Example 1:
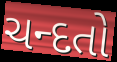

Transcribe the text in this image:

ચન્દતો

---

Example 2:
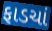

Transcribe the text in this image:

ફાડચાં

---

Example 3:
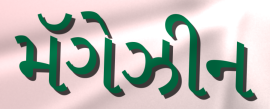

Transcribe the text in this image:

મૅગેઝીન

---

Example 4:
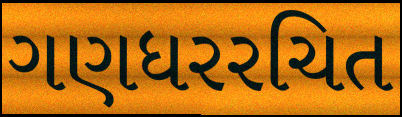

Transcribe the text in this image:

ગણધરરચિત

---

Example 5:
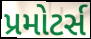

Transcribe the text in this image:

પ્રમોટર્સ